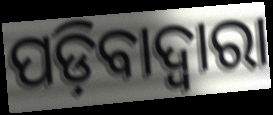
ପଡ଼ିବାଦ୍ୱାରା